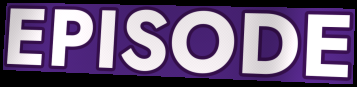
EPISODE